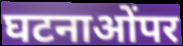
घटनाओंपर